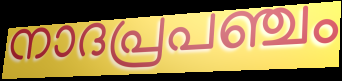
നാദപ്രപഞ്ചം